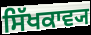
ਸਿੱਖਕਾਵ੍ਯ